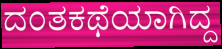
ದಂತಕಥೆಯಾಗಿದ್ದ